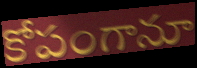
కోపంగానూ